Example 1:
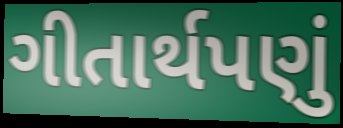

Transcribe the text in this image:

ગીતાર્થપણું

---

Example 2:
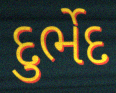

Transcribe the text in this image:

દુર્ભેદ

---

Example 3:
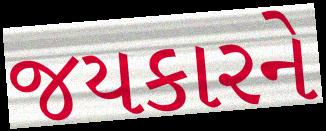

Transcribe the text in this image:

જયકારને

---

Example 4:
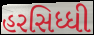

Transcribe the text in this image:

હરસિધ્ધી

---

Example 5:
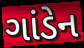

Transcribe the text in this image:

ગાંડેન